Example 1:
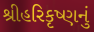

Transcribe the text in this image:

શ્રીહરિકૃષ્ણનું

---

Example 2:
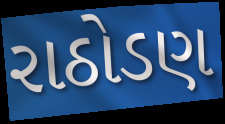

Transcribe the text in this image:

રાઠોડણ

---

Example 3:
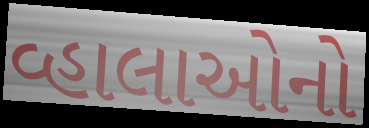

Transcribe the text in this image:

વ્હાલાઓનો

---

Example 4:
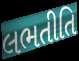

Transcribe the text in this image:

લભતીતિ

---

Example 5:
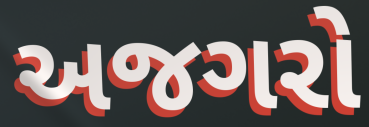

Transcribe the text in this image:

અજગરો